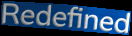
Redefined